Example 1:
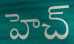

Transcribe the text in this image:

హెచ్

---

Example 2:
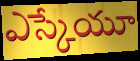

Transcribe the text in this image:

ఎస్కేయూ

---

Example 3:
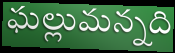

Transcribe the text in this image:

ఘల్లుమన్నది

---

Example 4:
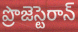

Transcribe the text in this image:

ప్రొజెస్టెరాన్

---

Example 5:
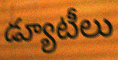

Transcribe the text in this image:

డ్యూటీలు